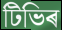
টিভিৰ